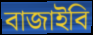
বাজাইবি